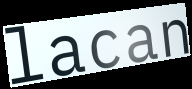
lacan